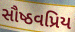
સૌષ્ઠવપ્રિય